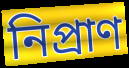
নিপ্রাণ